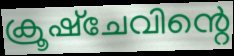
ക്രൂഷ്ചേവിന്റെ